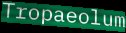
Tropaeolum